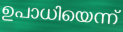
ഉപാധിയെന്ന്